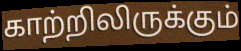
காற்றிலிருக்கும்